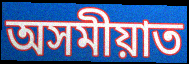
অসমীয়াত